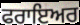
ਫਰਾਇਅਰ